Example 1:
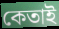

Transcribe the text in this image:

কেতাই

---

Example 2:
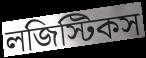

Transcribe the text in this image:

লজিস্টিকস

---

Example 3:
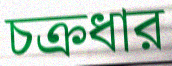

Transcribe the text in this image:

চক্রধার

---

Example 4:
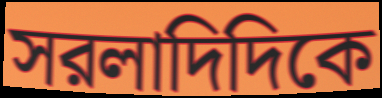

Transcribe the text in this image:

সরলাদিদিকে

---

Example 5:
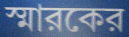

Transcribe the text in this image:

স্মারকের